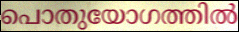
പൊതുയോഗത്തിൽ